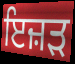
ਇਜ਼ੜ